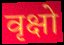
वृक्षो